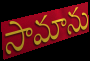
సామాను